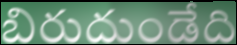
బిరుదుండేది